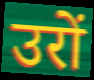
उरों